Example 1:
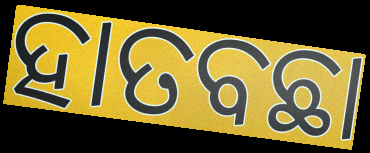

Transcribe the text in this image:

ହାତବଛା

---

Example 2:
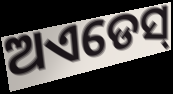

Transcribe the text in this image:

ଅଏଡେସ୍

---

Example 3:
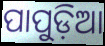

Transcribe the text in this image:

ପାପୁଡ଼ିଆ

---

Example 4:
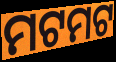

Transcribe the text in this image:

ମଟମଟ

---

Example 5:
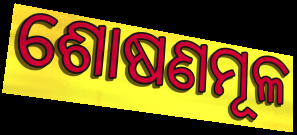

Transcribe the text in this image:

ଶୋଷଣମୂଳ